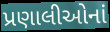
પ્રણાલીઓનાં